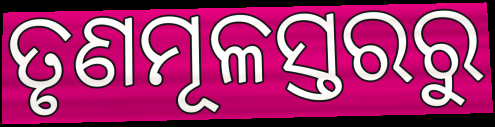
ତୃଣମୂଳସ୍ତରରୁ